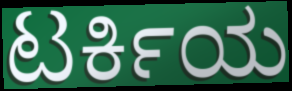
ಟರ್ಕಿಯ